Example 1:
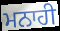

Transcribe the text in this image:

ਮਨਾਹੀ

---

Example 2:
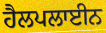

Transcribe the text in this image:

ਹੈਲਪਲਾਈਨ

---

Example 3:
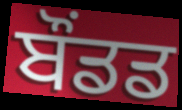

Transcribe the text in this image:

ਬੌਂਡਡ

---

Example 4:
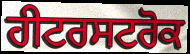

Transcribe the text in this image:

ਹੀਟਰਸਟਰੋਕ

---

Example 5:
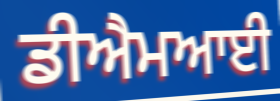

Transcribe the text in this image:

ਡੀਐਮਆਈ